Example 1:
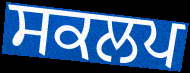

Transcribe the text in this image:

ਸਕਲਪ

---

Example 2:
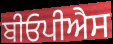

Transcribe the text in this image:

ਬੀਓਪੀਐਸ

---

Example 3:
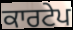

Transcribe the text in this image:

ਕਾਰਟੇਪ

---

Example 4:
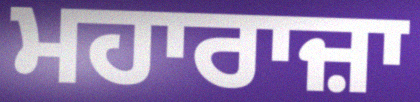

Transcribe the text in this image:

ਮਹਾਰਾਜ਼ਾ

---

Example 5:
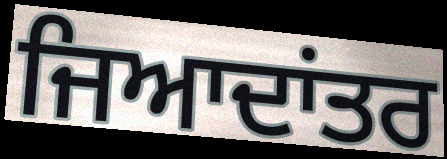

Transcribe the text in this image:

ਜਿਆਦਾਂਤਰ